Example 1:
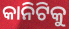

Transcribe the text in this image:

କାନିଟିକୁ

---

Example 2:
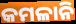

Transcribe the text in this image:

କମଳାନି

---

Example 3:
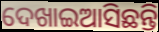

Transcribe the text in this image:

ଦେଖାଇଆସିଛନ୍ତି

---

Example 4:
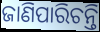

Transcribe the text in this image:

ଜାଣିପାରିଚନ୍ତି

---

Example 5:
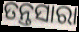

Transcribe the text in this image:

ତନ୍ତସାରା